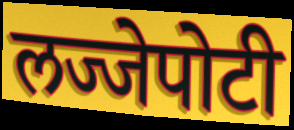
लज्जेपोटी